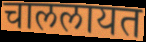
चाललायत